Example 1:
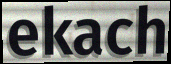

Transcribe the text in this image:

ekach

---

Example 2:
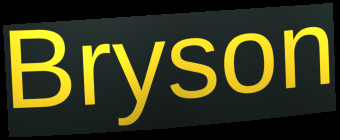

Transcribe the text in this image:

Bryson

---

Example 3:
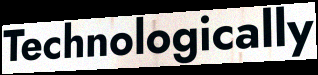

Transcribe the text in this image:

Technologically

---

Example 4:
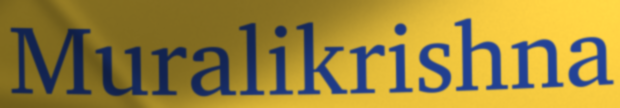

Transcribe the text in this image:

Muralikrishna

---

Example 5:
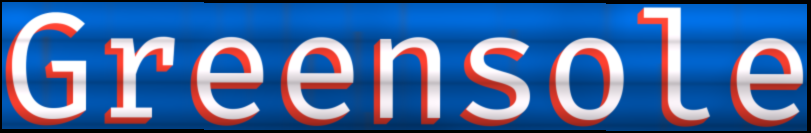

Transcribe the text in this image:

Greensole